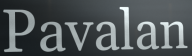
Pavalan